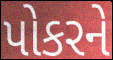
પોકરને